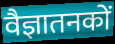
वैज्ञातनकों